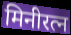
मिनीरत्न